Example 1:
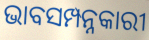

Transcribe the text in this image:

ଭାବସମ୍ପନ୍ନକାରୀ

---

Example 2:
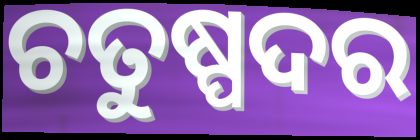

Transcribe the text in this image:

ଚତୁଷ୍ପଦର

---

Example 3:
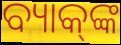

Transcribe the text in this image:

ବ୍ୟାକ୍‍ଙ୍କ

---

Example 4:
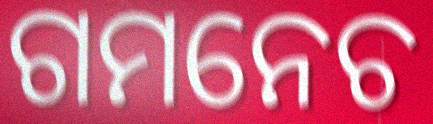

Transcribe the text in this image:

ଗମନେଚ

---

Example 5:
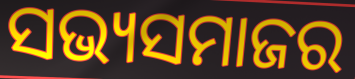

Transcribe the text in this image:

ସଭ୍ୟସମାଜର